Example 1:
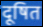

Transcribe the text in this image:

दूषित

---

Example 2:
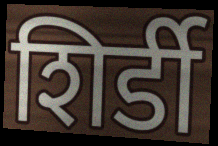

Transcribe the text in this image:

शिर्डी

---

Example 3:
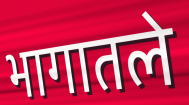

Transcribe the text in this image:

भागातले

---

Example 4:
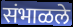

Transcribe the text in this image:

संभाळले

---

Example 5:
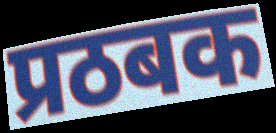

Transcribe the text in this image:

प्रठबक